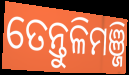
ତେନ୍ତୁଳିମଞ୍ଜି